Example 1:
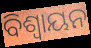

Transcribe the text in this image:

ବିଶ୍ୱାୟନ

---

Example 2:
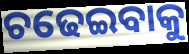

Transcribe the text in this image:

ଚଢେଇବାକୁ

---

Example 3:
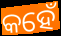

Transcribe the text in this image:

କହେଁ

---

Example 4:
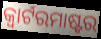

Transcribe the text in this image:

କ୍ୱାର୍ଟରମାଷ୍ଟର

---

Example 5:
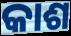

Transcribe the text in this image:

କାଶ